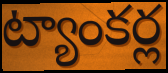
ట్యాంకర్ల